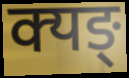
क्यङ्